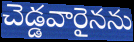
చెడ్డవారైనను